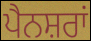
ਪੈਨਸ਼ਰਾਂ